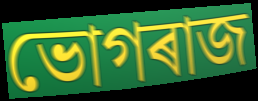
ভোগৰাজ